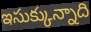
ఇసుక్కున్నాది